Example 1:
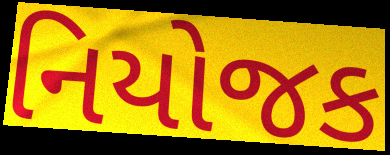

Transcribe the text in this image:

નિયોજક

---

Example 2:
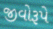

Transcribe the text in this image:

જીવોરૂપે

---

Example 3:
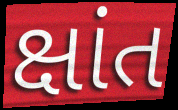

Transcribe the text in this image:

ક્ષાંત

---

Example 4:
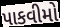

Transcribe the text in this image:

પાકવીમો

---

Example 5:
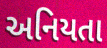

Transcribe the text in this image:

અનિયતા